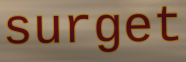
surget